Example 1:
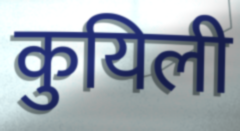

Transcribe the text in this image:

कुयिली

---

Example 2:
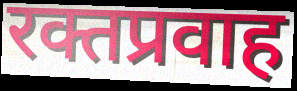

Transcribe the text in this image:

रक्तप्रवाह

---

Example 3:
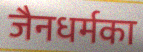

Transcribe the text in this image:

जैनधर्मका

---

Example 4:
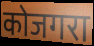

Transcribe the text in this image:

कोजगरा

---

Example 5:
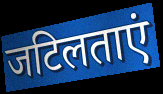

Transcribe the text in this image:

जटिलताएं